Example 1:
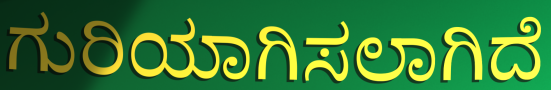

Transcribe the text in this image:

ಗುರಿಯಾಗಿಸಲಾಗಿದೆ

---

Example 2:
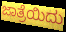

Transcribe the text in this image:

ಜಾತ್ರೆಯಿದು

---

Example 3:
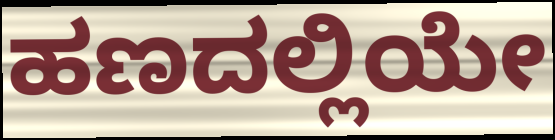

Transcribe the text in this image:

ಹಣದಲ್ಲಿಯೇ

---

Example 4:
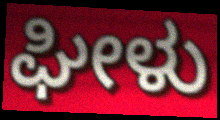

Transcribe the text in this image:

ಘೀಳು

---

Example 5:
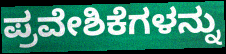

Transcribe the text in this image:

ಪ್ರವೇಶಿಕೆಗಳನ್ನು